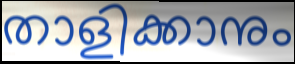
താളിക്കാനും